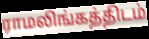
ராமலிங்கத்திடம்